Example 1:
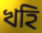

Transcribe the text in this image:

খহি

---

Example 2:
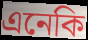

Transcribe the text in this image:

এনেকি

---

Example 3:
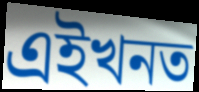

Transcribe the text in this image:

এইখনত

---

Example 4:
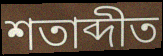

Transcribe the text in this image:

শতাব্দীত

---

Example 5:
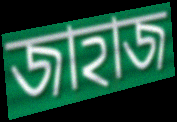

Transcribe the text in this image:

জাহাজ